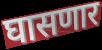
घासणार